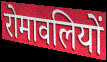
रोमावलियों